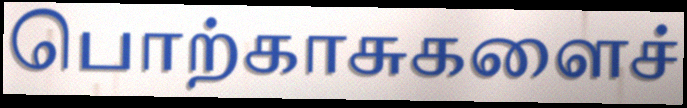
பொற்காசுகளைச்